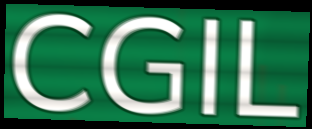
CGIL